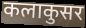
कलाकुसर